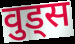
वुड्स